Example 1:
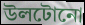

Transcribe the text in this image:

উলটোনো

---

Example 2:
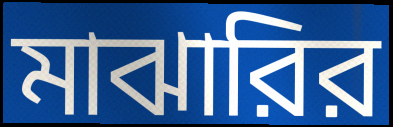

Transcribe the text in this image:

মাঝারির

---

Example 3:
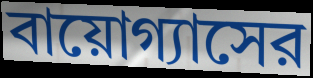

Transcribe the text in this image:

বায়োগ্যাসের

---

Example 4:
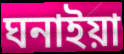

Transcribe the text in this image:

ঘনাইয়া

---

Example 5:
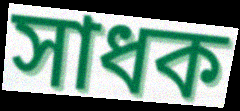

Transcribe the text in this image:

সাধক